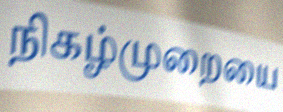
நிகழ்முறையை